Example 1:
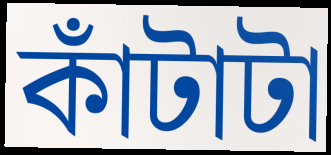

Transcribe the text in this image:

কাঁটাটা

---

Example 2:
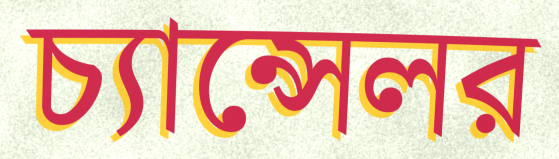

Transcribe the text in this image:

চ্যান্সেলর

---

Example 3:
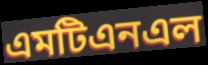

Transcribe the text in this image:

এমটিএনএল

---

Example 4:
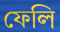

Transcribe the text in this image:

ফেলি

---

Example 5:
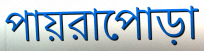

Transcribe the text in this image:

পায়রাপোড়া